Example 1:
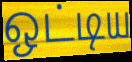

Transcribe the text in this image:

ஒட்டிய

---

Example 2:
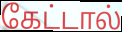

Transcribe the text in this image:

கேட்டால்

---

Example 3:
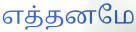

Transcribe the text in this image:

எத்தனமே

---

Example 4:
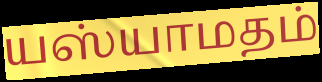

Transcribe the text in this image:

யஸ்யாமதம்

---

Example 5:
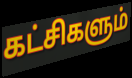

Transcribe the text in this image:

கட்சிகளும்